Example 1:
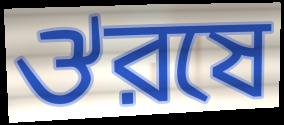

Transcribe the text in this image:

ঔরষে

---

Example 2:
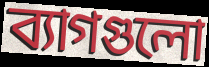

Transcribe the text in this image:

ব্যাগগুলো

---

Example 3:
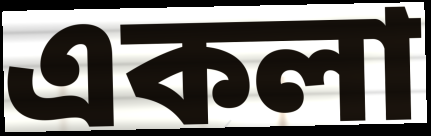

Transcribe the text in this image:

একলা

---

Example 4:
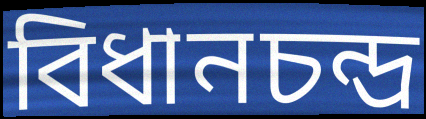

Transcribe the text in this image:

বিধানচন্দ্র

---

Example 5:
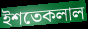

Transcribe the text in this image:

ইশতেকলাল